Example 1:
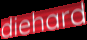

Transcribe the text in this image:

diehard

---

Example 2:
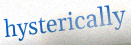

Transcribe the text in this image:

hysterically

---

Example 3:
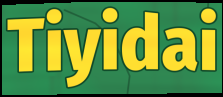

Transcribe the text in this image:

Tiyidai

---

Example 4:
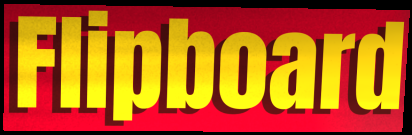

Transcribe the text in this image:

Flipboard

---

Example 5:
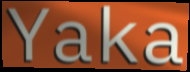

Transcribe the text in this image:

Yaka